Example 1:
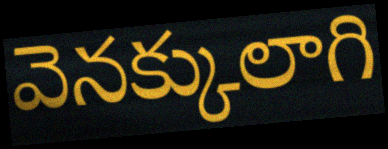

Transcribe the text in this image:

వెనక్కులాగి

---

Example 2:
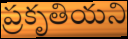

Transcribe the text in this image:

ప్రకృతియని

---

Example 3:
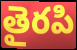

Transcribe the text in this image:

తైరపి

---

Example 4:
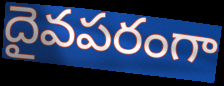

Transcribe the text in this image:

దైవపరంగా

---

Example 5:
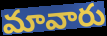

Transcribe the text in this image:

మావారు